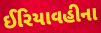
ઈરિયાવહીના